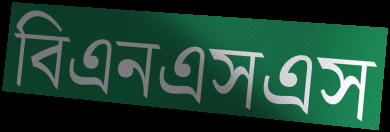
বিএনএসএস